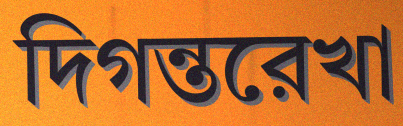
দিগন্তরেখা